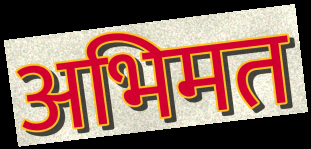
अभिमत